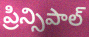
ప్రిన్సిపాల్